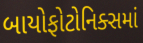
બાયોફોટોનિક્સમાં